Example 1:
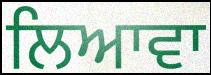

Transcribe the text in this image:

ਲਿਆਵਾ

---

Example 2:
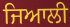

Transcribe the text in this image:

ਜਿਆਲੀ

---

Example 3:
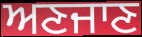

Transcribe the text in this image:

ਅਣਜਾਣ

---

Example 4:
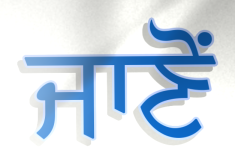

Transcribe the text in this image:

ਜਾਣੋਂ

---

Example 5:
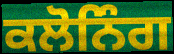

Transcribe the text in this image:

ਕਲੋਨਿੰਗ